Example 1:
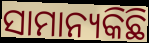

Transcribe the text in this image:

ସାମାନ୍ୟକିଛି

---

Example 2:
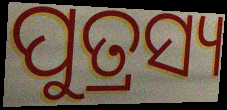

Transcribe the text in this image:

ପୁତ୍ରସ୍ୟ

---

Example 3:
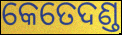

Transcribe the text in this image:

କେତେଦଣ୍ଡ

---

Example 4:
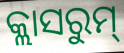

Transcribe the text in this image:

କ୍ଲାସରୁମ୍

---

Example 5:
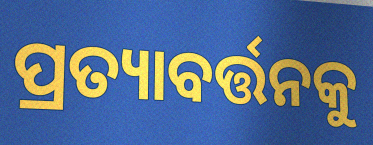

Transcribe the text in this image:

ପ୍ରତ୍ୟାବର୍ତ୍ତନକୁ